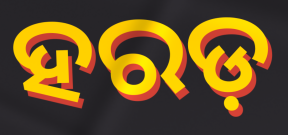
ହରଡ଼